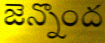
జెన్నొంద